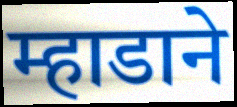
म्हाडाने